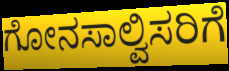
ಗೋನಸಾಲ್ವಿಸರಿಗೆ